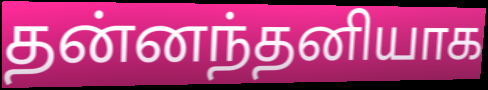
தன்னந்தனியாக